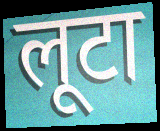
लूटा